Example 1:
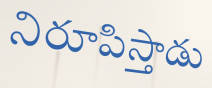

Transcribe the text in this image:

నిరూపిస్తాడు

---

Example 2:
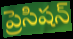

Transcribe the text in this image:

ప్రెసిషన్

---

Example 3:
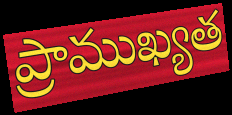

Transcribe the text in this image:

ప్రాముఖ్యత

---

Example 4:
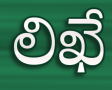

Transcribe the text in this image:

లిఖే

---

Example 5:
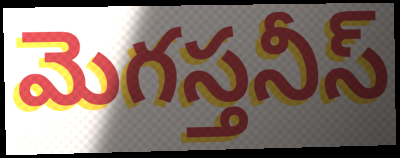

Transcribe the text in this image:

మెగస్తనీస్